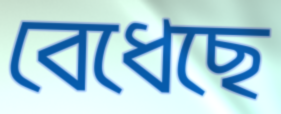
বেধেছে